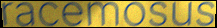
racemosus